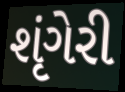
શૃંગેરી